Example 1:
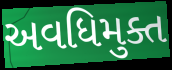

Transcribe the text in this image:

અવધિમુક્ત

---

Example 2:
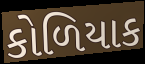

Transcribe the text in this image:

કોળિયાક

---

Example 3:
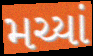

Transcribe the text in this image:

મચ્યાં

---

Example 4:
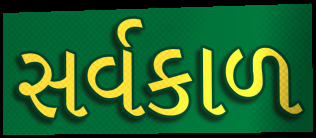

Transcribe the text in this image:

સર્વકાળ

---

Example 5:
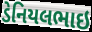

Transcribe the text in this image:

ડેનિયલભાઇ